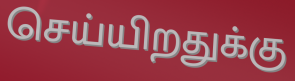
செய்யிறதுக்கு